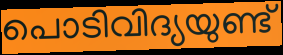
പൊടിവിദ്യയുണ്ട്